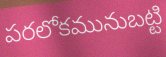
పరలోకమునుబట్టి